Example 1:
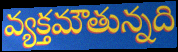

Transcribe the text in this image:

వ్యక్తమౌతున్నది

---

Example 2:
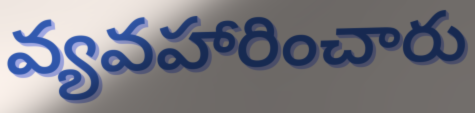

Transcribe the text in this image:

వ్యవహారించారు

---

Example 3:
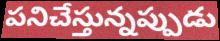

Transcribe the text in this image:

పనిచేస్తున్నప్పుడు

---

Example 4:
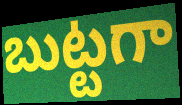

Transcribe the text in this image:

బుట్టగా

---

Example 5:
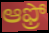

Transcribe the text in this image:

ఆఫ్రో